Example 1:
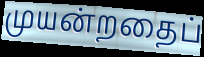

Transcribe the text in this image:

முயன்றதைப்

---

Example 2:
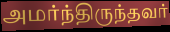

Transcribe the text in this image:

அமர்ந்திருந்தவர்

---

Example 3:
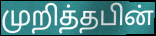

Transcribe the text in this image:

முறித்தபின்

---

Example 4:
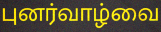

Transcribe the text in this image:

புனர்வாழ்வை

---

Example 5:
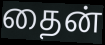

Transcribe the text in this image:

தைன்